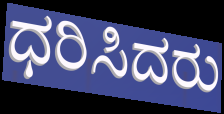
ಧರಿಸಿದರು